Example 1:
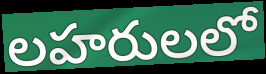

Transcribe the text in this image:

లహరులలో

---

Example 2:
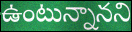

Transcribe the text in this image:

ఉంటున్నానని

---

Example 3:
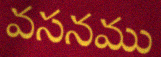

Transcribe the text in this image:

వసనము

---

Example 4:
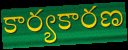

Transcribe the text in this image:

కార్యకారణ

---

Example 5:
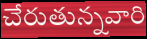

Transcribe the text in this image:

చేరుతున్నవారి